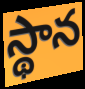
స్థాన